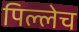
पिल्लेच